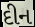
દીન